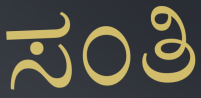
ಸಂತಿ